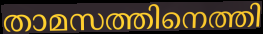
താമസത്തിനെത്തി